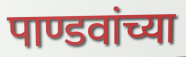
पाण्डवांच्या